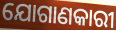
ଯୋଗାଣକାରୀ